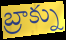
బ్రాక్ను